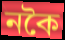
নকৈ